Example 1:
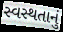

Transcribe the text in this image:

સ્વસ્થતાનું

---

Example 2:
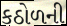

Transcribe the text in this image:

કઠોળની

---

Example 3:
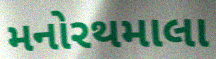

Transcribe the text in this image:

મનોરથમાલા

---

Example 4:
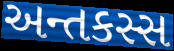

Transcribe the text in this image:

અન્તકસ્સ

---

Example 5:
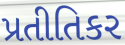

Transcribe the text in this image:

પ્રતીતિકર